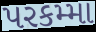
પરકમ્મા